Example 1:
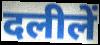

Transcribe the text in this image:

दलीलें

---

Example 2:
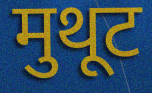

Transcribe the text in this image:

मुथूट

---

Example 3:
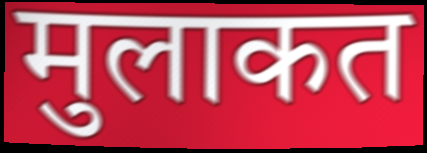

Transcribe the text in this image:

मुलाकत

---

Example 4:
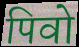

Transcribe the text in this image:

पिवो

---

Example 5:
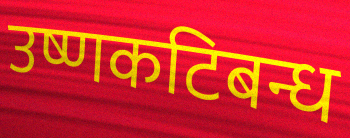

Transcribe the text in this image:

उष्णकटिबन्ध